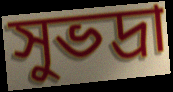
সুভদ্রা